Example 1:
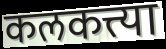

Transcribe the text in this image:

कलकत्त्या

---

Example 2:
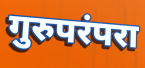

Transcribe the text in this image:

गुरुपरंपरा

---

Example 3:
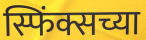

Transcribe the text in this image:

स्फिंक्सच्या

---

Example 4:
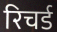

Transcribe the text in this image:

रिचर्ड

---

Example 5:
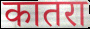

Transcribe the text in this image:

कातरा